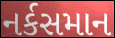
નર્કસમાન